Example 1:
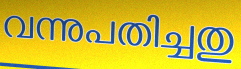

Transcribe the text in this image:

വന്നുപതിച്ചതു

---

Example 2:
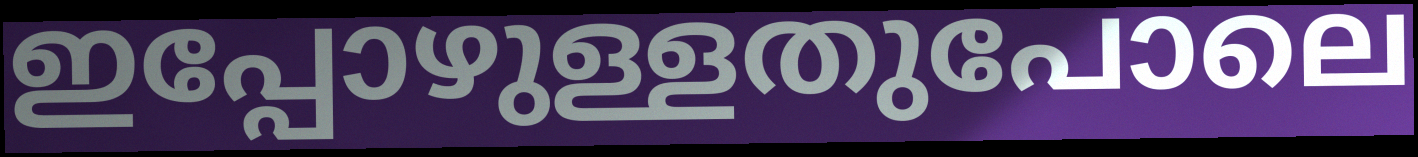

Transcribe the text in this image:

ഇപ്പോഴുള്ളതുപോലെ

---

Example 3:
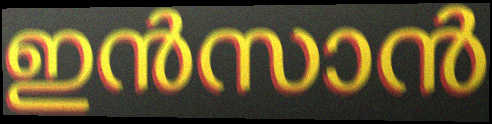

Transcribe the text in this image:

ഇൻസാൻ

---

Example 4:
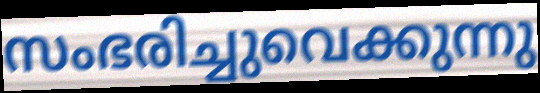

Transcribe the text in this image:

സംഭരിച്ചുവെക്കുന്നു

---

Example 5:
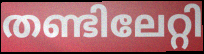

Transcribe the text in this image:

തണ്ടിലേറ്റി